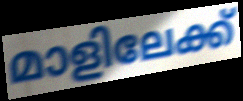
മാളിലേക്ക്